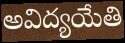
అవిద్యయేతి